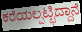
ಕರೆಯಲ್ಪಟ್ಟಿದ್ದಾನೆ